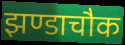
झण्डाचौक